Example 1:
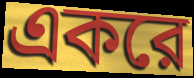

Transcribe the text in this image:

একরে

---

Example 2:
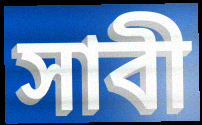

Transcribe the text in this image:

সাবী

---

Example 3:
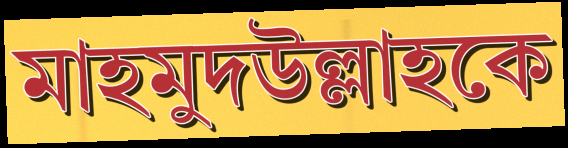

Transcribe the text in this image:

মাহমুদউল্লাহকে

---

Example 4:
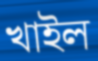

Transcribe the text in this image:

খাইল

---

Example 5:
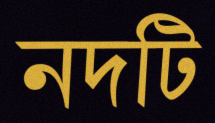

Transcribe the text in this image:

নদটি